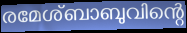
രമേശ്ബാബുവിന്റെ